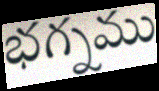
భగ్నము